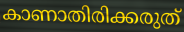
കാണാതിരിക്കരുത്